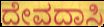
ದೇವದಾಸಿ